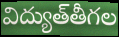
విద్యుత్‌తీగల